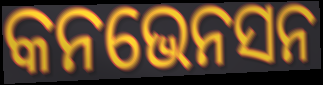
କନଭେନସନ